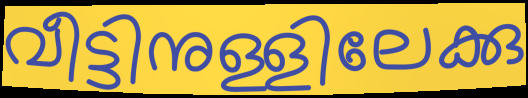
വീട്ടിനുള്ളിലേക്കു